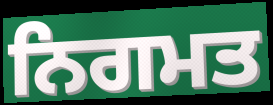
ਨਿਗਮਤ